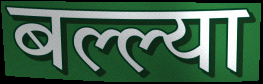
बल्ल्या